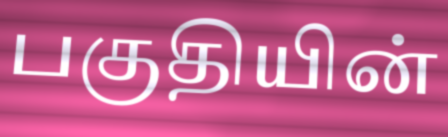
பகுதியின்